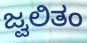
ಜ್ವಲಿತಂ